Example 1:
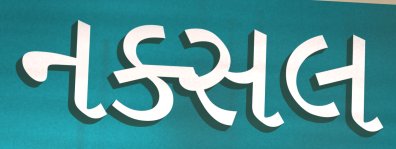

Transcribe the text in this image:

નક્સલ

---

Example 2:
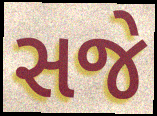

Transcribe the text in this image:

સજે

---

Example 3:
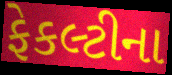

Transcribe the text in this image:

ફેકલ્ટીના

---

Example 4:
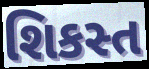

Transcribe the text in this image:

શિકસ્ત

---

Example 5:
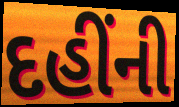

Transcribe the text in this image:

દહીંની